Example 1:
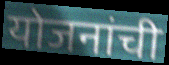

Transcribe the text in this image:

योजनांची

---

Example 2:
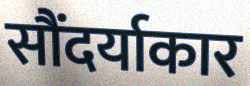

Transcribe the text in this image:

सौंदर्याकार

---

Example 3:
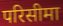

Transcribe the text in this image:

परिसीमा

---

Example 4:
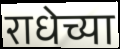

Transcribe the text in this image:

राधेच्या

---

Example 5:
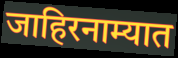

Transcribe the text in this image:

जाहिरनाम्यात